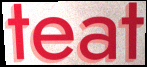
teat